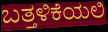
ಬತ್ತಳಿಕೆಯಲಿ